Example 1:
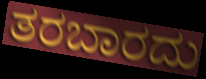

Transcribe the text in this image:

ತರಬಾರದು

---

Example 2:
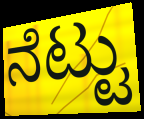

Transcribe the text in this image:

ನೆಟ್ಟು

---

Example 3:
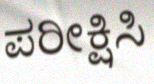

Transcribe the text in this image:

ಪರೀಕ್ಷಿಸಿ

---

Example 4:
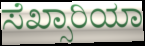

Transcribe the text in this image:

ಸೆಖ್ಸಾರಿಯಾ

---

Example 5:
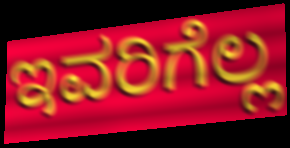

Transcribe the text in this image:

ಇವರಿಗೆಲ್ಲ